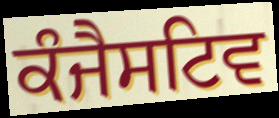
ਕੰਜੈਸਟਿਵ